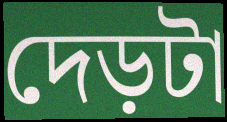
দেড়টা